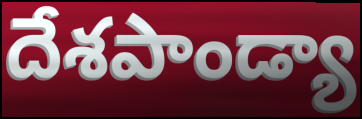
దేశపాండ్యా